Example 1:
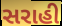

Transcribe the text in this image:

સરાહી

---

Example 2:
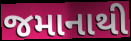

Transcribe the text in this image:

જમાનાથી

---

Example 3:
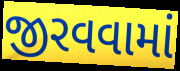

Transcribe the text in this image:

જીરવવામાં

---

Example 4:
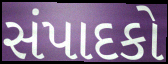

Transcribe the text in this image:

સંપાદકો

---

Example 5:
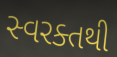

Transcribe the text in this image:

સ્વરક્તથી